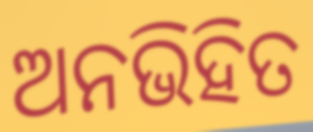
ଅନଭିହିତ